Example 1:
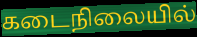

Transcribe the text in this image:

கடைநிலையில்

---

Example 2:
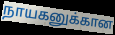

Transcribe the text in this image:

நாயகனுக்கான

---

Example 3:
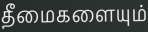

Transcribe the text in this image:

தீமைகளையும்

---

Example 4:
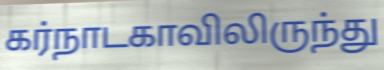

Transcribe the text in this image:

கர்நாடகாவிலிருந்து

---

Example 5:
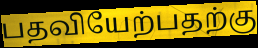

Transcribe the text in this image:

பதவியேற்பதற்கு